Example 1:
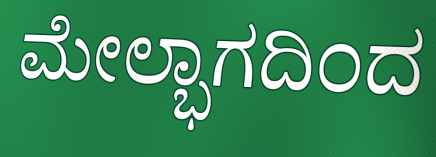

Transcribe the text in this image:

ಮೇಲ್ಭಾಗದಿಂದ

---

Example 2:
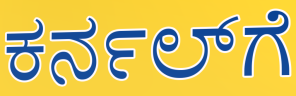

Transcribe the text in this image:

ಕರ್ನಲ್‌ಗೆ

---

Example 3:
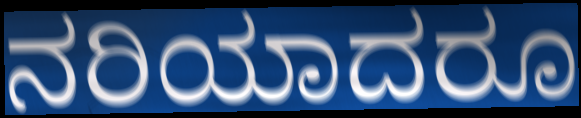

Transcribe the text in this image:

ನರಿಯಾದರೂ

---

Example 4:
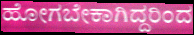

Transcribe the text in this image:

ಹೋಗಬೇಕಾಗಿದ್ದರಿಂದ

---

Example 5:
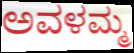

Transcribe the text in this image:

ಅವಳಮ್ಮ